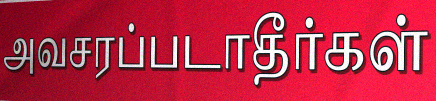
அவசரப்படாதீர்கள்